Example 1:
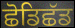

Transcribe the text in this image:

ਛੋਡਿਛੱਡ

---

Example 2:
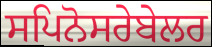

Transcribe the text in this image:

ਸਪਿਨੋਸਰੇਬੇਲਰ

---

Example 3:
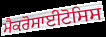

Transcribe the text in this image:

ਮੈਕਰੋਸਾਈਟੋਸਿਸ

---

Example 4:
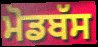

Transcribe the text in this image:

ਮੋਡਬੱਸ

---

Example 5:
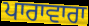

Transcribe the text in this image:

ਪਾਰਾਵਾਰਾ